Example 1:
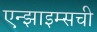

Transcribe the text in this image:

एन्झाइम्सची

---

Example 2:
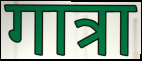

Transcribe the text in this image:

गात्रा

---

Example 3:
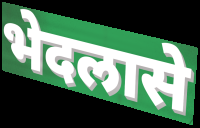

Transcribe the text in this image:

भेदलासे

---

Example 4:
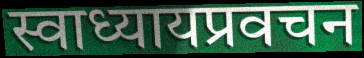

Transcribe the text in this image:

स्वाध्यायप्रवचन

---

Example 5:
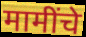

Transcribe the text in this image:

मामींचे